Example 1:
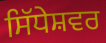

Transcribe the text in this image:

ਸਿੱਧੇਸ਼ਵਰ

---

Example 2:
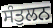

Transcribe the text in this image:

ਸੰਤੁਲਨ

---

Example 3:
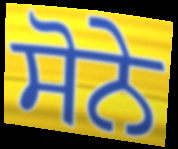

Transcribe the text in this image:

ਸੋਨੇ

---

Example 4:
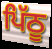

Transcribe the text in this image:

ਪਿੱਠੂ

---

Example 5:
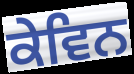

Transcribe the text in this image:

ਕੇਵਿਨ